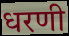
धरणी